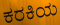
ಕರಕಿಯ